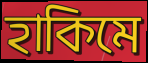
হাকিমে